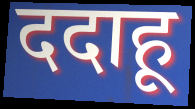
ददाहू